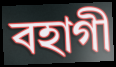
বহাগী